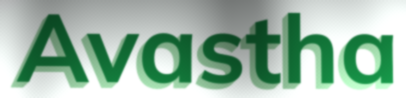
Avastha